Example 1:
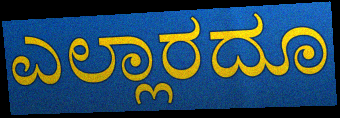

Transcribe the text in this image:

ಎಲ್ಲಾರದೂ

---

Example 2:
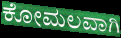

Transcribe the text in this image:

ಕೋಮಲವಾಗಿ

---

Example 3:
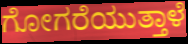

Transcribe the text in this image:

ಗೋಗರೆಯುತ್ತಾಳೆ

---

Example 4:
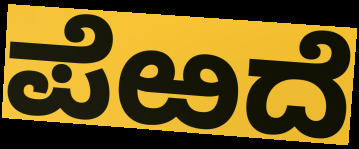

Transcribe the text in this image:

ಪೆಱದೆ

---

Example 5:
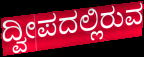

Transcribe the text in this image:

ದ್ವೀಪದಲ್ಲಿರುವ